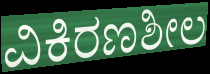
ವಿಕಿರಣಶೀಲ